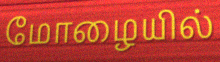
மோழையில்